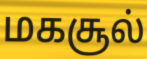
மகசூல்